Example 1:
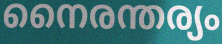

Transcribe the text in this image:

നൈരന്തര്യം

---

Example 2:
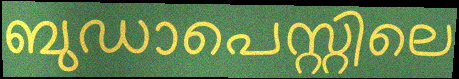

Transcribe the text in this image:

ബുഡാപെസ്റ്റിലെ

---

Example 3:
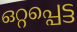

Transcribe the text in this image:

ഒറ്റപ്പെട്ട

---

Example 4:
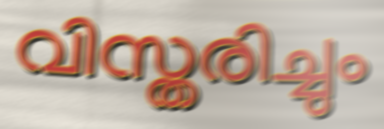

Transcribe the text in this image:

വിസ്തരിച്ചും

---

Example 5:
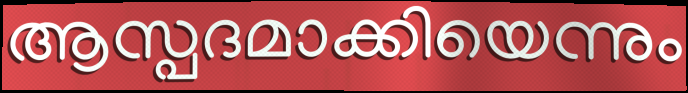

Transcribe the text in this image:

ആസ്പദമാക്കിയെന്നും